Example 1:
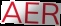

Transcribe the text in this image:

AER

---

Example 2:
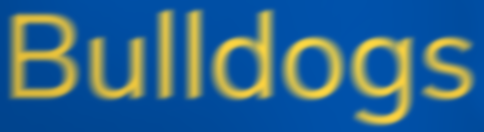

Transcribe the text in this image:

Bulldogs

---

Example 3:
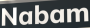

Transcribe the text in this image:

Nabam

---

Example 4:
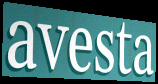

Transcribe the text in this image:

avesta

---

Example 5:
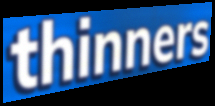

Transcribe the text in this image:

thinners